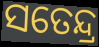
ସତେନ୍ଦ୍ର